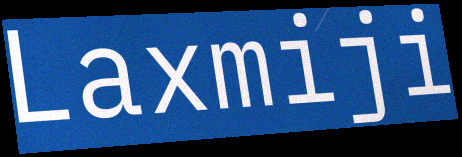
Laxmiji